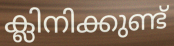
ക്ലിനിക്കുണ്ട്